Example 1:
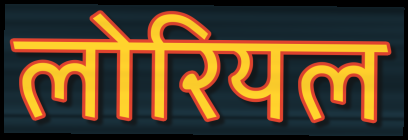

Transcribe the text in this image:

लोरियल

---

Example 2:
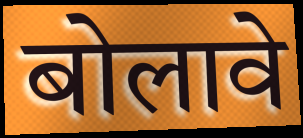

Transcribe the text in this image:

बोलावे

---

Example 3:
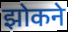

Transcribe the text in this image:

झोकने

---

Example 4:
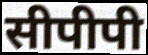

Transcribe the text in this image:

सीपीपी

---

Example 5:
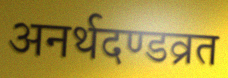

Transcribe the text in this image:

अनर्थदण्डव्रत